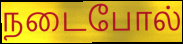
நடைபோல்